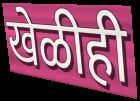
खेळीही